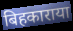
बिहकाराया